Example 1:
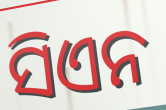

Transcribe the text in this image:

ସିଏନ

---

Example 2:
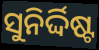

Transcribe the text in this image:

ସୁନିର୍ଦ୍ଦିଷ୍ଟ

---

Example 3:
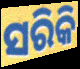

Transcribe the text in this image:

ସରିକି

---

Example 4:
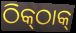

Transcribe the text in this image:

ଠିକ୍‌ଠାକ୍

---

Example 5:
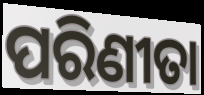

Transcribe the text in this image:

ପରିଣୀତା